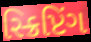
સ્ક્રિપ્ટિંગ